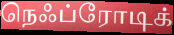
நெஃப்ரோடிக்